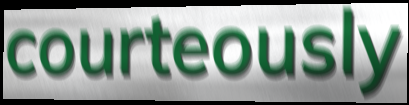
courteously